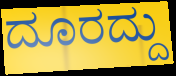
ದೂರದ್ದು